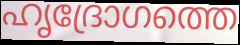
ഹൃദ്രോഗത്തെ